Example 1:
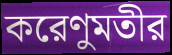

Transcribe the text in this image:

করেণুমতীর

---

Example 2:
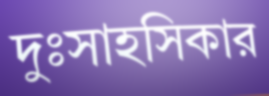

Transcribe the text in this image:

দুঃসাহসিকার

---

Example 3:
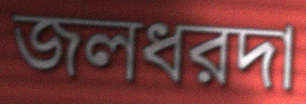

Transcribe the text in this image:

জলধরদা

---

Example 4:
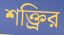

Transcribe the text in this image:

শক্ত্রির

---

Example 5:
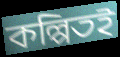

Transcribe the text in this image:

কল্পিতই